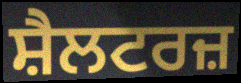
ਸ਼ੈਲਟਰਜ਼